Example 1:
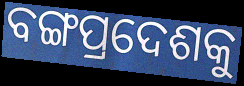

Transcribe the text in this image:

ବଙ୍ଗପ୍ରଦେଶକୁ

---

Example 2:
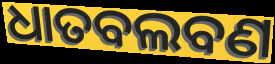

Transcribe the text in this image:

ଧାତବଲବଣ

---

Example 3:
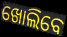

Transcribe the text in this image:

ଖୋଲିବେ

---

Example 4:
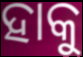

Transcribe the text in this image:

ହାକୁ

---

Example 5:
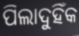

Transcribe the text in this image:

ପିଲାଦୁହିଁକ